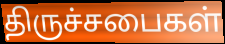
திருச்சபைகள்